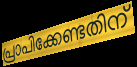
പ്രാപിക്കേണ്ടതിന്